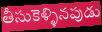
తీసుకెళ్ళినపుడు